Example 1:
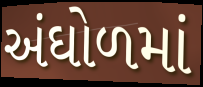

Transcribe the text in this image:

અંઘોળમાં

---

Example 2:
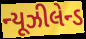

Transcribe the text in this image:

ન્યૂઝીલેન્ડ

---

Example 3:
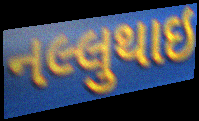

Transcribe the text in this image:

નલ્લુથાઇ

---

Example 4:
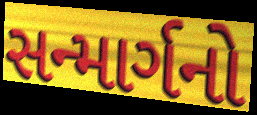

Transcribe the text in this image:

સન્માર્ગનો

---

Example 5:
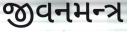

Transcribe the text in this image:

જીવનમન્ત્ર